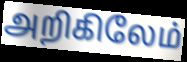
அறிகிலேம்